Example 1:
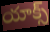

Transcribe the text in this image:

యాక్స్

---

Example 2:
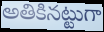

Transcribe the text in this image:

అతికినట్టుగా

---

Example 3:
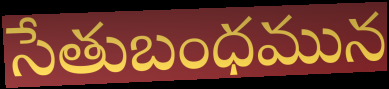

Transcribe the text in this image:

సేతుబంధమున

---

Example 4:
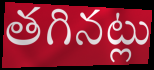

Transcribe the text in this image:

తగినట్లు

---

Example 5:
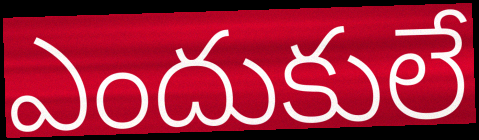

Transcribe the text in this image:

ఎందుకులే